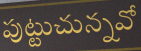
పుట్టుచున్నవో